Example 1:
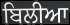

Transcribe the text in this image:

ਬਿਲੀਆ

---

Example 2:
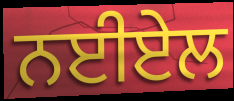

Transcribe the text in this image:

ਨਈਏਲ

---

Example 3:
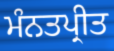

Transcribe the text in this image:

ਮੰਨਤਪ੍ਰੀਤ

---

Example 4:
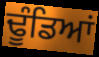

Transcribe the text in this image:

ਢੂੰਡਿਆਂ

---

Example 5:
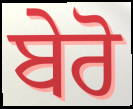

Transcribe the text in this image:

ਬੇਰੋ